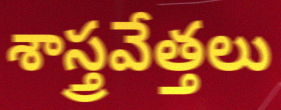
శాస్త్రవేత్తలు